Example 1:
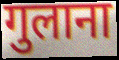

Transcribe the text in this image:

गुलाना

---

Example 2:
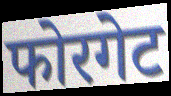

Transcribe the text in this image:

फोरगेट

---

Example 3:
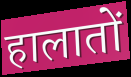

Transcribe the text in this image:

हालातों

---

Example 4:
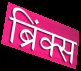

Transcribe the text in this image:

ब्रिंक्स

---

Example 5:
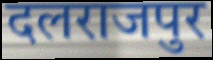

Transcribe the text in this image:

दलराजपुर